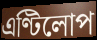
এণ্টিলোপ